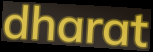
dharat